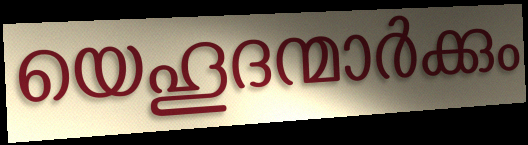
യെഹൂദന്മാർക്കും